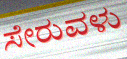
ಸೇರುವಳು